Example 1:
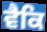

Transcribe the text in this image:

ਵੈਕਿ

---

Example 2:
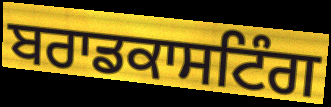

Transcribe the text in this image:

ਬਰਾਡਕਾਸਟਿੰਗ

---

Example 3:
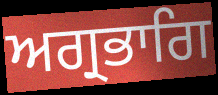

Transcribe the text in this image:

ਅਗ੍ਰਭਾਗਿ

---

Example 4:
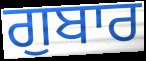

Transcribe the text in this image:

ਗੁਬਾਰ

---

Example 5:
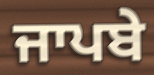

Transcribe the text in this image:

ਜਾਪਬੇ